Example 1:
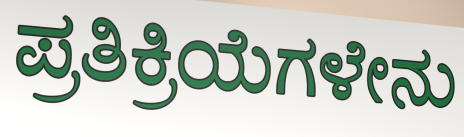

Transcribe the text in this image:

ಪ್ರತಿಕ್ರಿಯೆಗಳೇನು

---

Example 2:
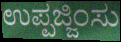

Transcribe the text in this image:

ಉಪ್ಪಜ್ಜಿಂಸು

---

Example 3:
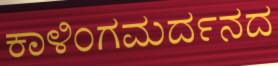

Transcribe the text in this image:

ಕಾಳಿಂಗಮರ್ದನದ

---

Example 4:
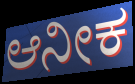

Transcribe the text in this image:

ಆನೀಕ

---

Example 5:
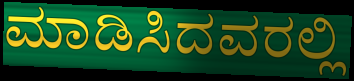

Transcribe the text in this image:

ಮಾಡಿಸಿದವರಲ್ಲಿ